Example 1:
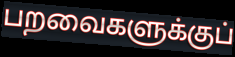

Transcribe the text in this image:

பறவைகளுக்குப்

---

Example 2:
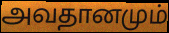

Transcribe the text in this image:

அவதானமும்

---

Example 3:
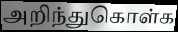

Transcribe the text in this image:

அறிந்துகொள்க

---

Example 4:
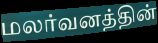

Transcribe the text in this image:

மலர்வனத்தின்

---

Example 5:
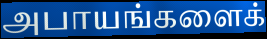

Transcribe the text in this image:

அபாயங்களைக்